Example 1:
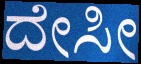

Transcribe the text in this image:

ದೇಸೀ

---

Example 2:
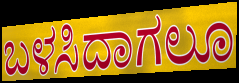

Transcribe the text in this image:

ಬಳಸಿದಾಗಲೂ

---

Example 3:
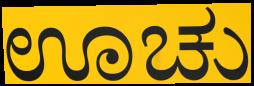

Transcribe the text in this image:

ಊಚು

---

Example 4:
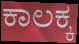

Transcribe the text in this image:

ಕಾಲಕ್ಕ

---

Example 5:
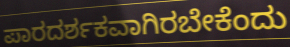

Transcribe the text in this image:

ಪಾರದರ್ಶಕವಾಗಿರಬೇಕೆಂದು